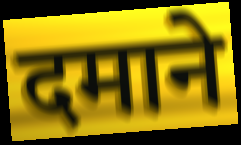
दमाने